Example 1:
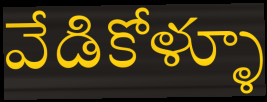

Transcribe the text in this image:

వేడికోళ్ళూ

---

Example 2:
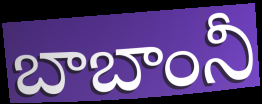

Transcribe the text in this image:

బాబాంనీ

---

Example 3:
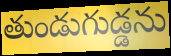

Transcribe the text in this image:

తుండుగుడ్డను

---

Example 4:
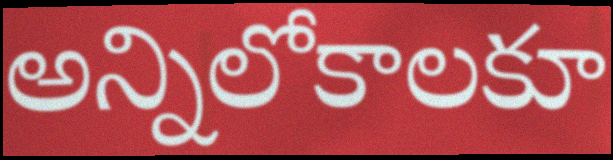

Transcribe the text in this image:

అన్నిలోకాలకూ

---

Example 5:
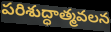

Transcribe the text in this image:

పరిశుద్ధాత్మవలన